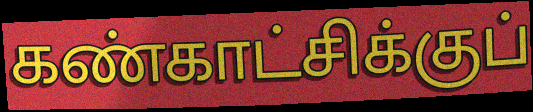
கண்காட்சிக்குப்